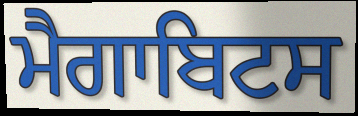
ਮੈਗਾਬਿਟਸ